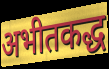
अभीतकद्ध